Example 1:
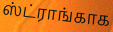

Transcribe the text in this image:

ஸ்ட்ராங்காக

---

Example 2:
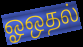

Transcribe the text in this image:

ஓஒதல்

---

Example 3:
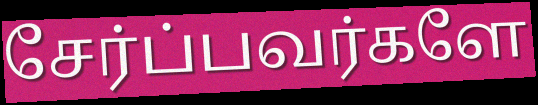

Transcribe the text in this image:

சேர்ப்பவர்களே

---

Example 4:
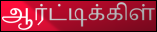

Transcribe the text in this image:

ஆர்ட்டிக்கிள்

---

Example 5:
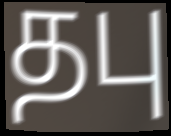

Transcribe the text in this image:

தபு